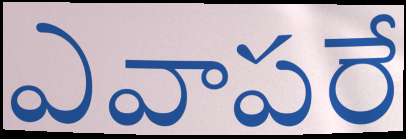
ఎవాపరే